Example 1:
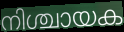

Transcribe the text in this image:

നിശ്ചായക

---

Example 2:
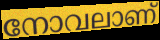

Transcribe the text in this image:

നോവലാണ്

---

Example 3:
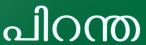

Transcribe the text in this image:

പിറന്ത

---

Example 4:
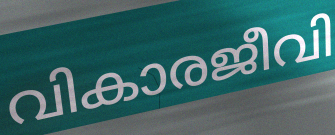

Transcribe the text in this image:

വികാരജീവി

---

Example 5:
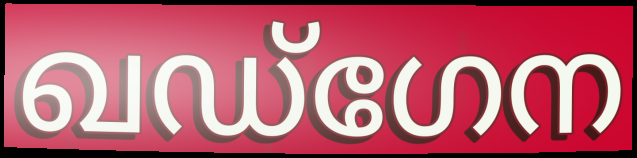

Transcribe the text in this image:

ഖഡ്ഗേന